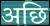
अछि